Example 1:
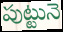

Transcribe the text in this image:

పుట్టునె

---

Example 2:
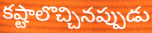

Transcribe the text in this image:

కష్టాలొచ్చినప్పుడు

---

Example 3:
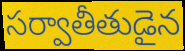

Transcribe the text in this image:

సర్వాతీతుడైన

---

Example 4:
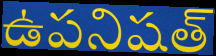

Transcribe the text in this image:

ఉపనిషత్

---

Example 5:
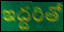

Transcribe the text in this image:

ఇద్దరితో